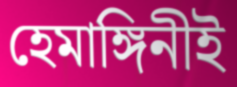
হেমাঙ্গিনীই